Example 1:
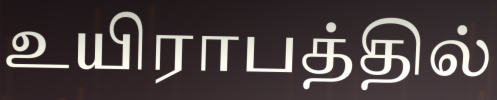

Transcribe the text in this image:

உயிராபத்தில்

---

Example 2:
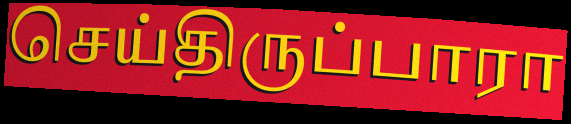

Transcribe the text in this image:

செய்திருப்பாரா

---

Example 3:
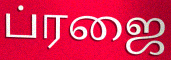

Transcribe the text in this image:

ப்ரஜை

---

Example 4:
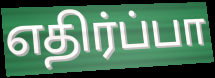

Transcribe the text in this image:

எதிர்ப்பா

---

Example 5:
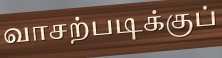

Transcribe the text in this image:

வாசற்படிக்குப்